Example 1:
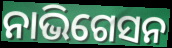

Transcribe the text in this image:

ନାଭିଗେସନ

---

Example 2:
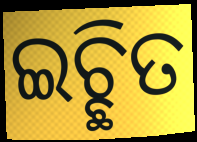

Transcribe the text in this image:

ଇଚ୍ଛିତ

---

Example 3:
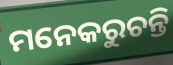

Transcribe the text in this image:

ମନେକରୁଚନ୍ତି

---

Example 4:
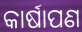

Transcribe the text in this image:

କାର୍ଷାପଣ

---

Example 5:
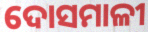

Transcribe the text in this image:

ଦୋସମାଳୀ